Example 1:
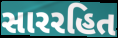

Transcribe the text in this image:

સારરહિત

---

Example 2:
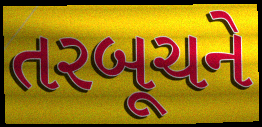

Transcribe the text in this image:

તરબૂચને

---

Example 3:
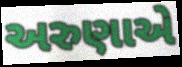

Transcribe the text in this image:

અરુણાએ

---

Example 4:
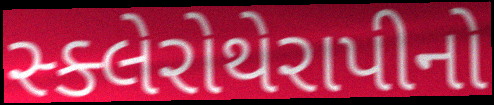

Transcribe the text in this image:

સ્ક્લેરોથેરાપીનો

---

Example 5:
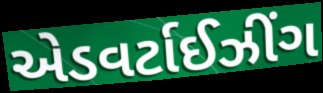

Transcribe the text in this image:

એડવર્ટાઈઝીંગ